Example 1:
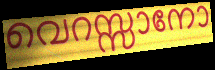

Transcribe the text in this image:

വെറസ്സാനോ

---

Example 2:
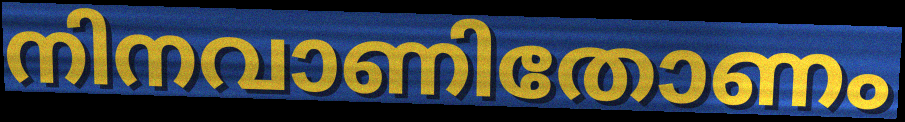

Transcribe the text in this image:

നിനവാണിതോണം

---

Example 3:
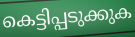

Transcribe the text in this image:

കെട്ടിപ്പടുക്കുക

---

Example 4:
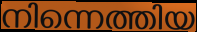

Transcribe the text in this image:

നിന്നെത്തിയ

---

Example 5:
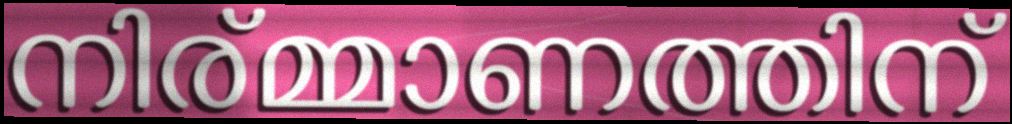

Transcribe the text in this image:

നിര്മ്മാണത്തിന്